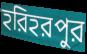
হরিহরপুর